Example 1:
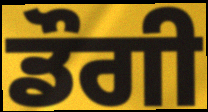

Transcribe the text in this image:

ਡੌਗੀ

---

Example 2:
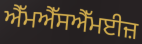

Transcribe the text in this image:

ਐੱਮਐੱਸਐੱਮਈਜ਼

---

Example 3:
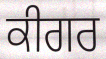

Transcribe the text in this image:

ਕੀਗਰ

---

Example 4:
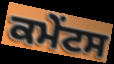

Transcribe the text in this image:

ਕਮੇੰਟਸ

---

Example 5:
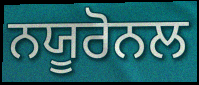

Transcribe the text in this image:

ਨਯੂਰੋਨਲ